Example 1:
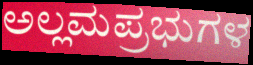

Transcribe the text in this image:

ಅಲ್ಲಮಪ್ರಭುಗಳ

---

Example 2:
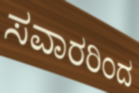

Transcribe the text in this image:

ಸವಾರರಿಂದ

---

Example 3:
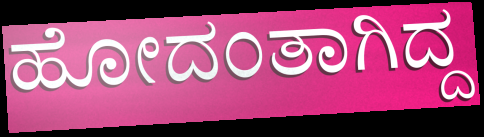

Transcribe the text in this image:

ಹೋದಂತಾಗಿದ್ದ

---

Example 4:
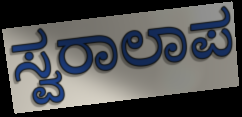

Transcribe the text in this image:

ಸ್ವರಾಲಾಪ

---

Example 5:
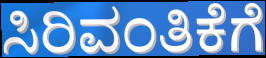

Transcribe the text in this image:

ಸಿರಿವಂತಿಕೆಗೆ